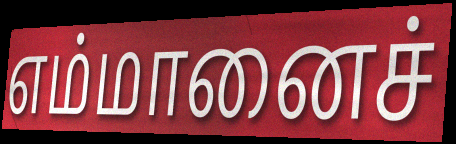
எம்மானைச்